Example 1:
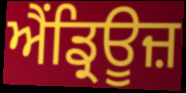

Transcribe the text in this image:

ਐਂਡ੍ਰਿਊਜ਼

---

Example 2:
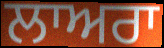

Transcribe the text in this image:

ਲਾਅਰਾ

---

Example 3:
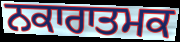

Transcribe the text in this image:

ਨਕਾਰਾਤਮਕ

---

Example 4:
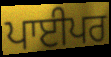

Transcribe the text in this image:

ਪਾਈਪਰ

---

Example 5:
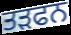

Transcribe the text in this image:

ਤੜਫਨ